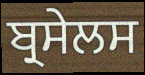
ਬ੍ਰਸੇਲਸ